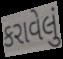
કરાવેલું